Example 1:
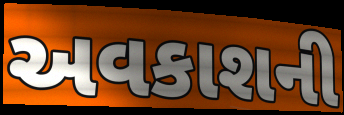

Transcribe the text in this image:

અવકાશની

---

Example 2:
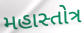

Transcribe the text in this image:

મહાસ્તોત્ર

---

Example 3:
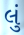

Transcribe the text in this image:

લું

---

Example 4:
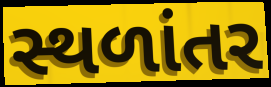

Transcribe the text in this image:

સ્થળાંતર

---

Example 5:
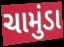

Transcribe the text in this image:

ચામુંડા